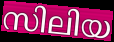
സിലിയ